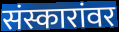
संस्कारांवर